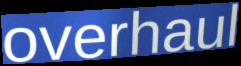
overhaul